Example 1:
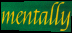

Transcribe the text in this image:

mentally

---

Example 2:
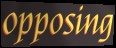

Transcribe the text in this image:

opposing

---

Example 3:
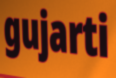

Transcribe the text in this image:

gujarti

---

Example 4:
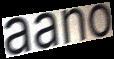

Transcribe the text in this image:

aano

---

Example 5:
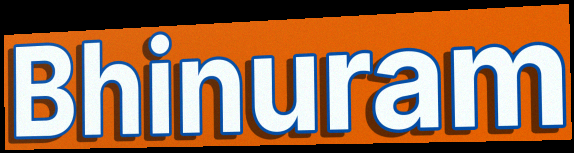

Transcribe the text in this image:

Bhinuram